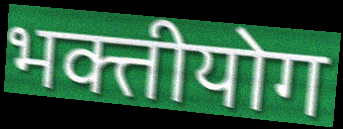
भक्तीयोग